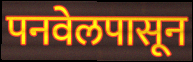
पनवेलपासून